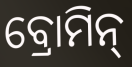
ବ୍ରୋମିନ୍